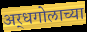
अर्धगोलाच्या